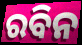
ରବିନ